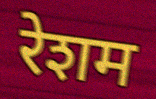
रेशम